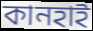
কানহাই